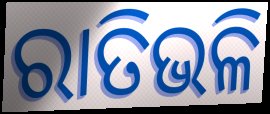
ରାତିଭଳି